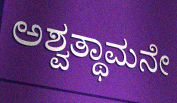
ಅಶ್ವತ್ಥಾಮನೇ